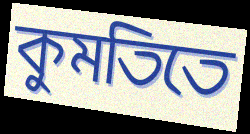
কুমতিতে